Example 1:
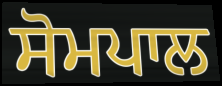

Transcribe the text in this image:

ਸੋਮਪਾਲ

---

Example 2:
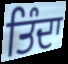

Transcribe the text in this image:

ਤਿੰਦਾ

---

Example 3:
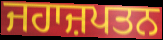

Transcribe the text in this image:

ਜਹਾਜ਼ਪਤਨ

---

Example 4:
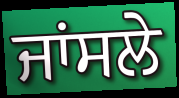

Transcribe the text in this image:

ਜਾਂਸਲੇ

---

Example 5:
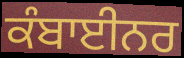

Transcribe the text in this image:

ਕੰਬਾਈਨਰ